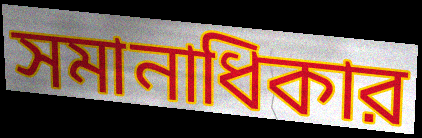
সমানাধিকার